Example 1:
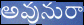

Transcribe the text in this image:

అవునురా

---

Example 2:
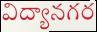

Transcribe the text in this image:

విద్యానగర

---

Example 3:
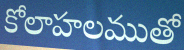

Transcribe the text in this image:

కోలాహలముతో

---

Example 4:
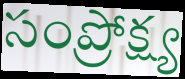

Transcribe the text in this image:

సంప్రోక్ష్య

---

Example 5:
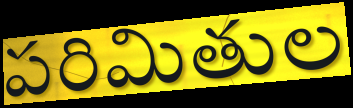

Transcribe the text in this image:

పరిమితుల